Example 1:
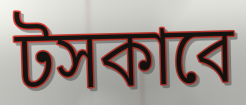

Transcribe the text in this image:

টসকাবে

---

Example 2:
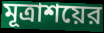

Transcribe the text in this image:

মূত্রাশয়ের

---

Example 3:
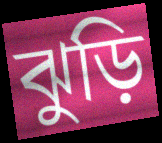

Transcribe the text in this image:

ঝুড়ি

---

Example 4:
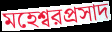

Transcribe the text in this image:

মহেশ্বরপ্রসাদ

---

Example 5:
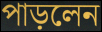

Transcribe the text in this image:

পাড়লেন